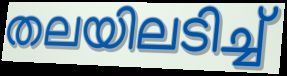
തലയിലടിച്ച്